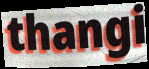
thangi